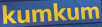
kumkum